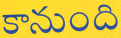
కానుంది